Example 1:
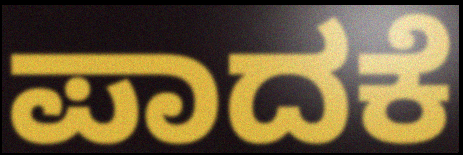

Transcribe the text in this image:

ಪಾದಕೆ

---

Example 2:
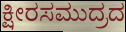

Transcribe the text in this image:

ಕ್ಷೀರಸಮುದ್ರದ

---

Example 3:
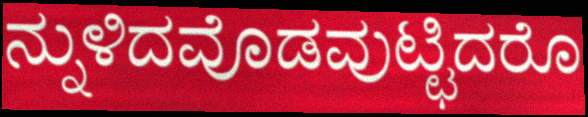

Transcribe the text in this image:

ನ್ನುಳಿದವೊಡವುಟ್ಟಿದರೊ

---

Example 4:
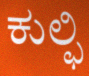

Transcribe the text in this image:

ಕುಲ್ಫಿ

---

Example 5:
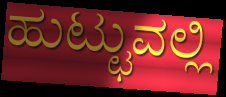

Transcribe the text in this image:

ಹುಟ್ಟುವಲ್ಲಿ